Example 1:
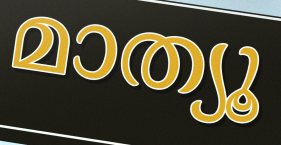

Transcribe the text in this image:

മാത്യൂ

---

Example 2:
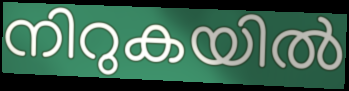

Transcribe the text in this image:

നിറുകയിൽ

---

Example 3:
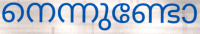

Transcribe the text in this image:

നെന്നുണ്ടോ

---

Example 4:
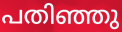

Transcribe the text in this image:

പതിഞ്ഞു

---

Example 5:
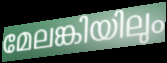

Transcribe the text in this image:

മേലങ്കിയിലും